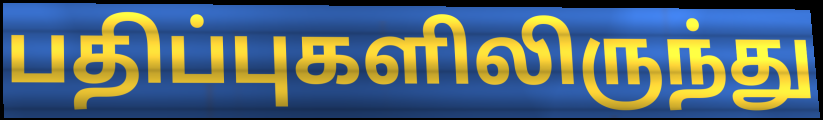
பதிப்புகளிலிருந்து